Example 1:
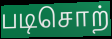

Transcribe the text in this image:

படிசொற்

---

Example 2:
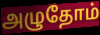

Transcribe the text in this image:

அழுதோம்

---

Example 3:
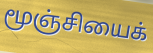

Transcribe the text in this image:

மூஞ்சியைக்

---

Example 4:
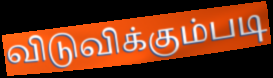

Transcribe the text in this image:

விடுவிக்கும்படி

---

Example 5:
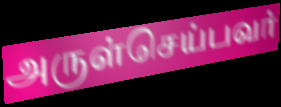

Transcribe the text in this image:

அருள்செய்பவர்